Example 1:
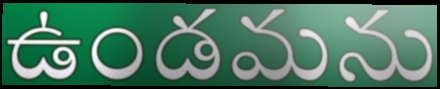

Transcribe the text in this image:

ఉండమను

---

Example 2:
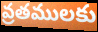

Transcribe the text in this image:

వ్రతములకు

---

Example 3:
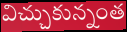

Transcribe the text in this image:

విచ్చుకున్నంత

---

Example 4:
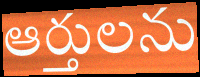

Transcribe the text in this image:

ఆర్తులను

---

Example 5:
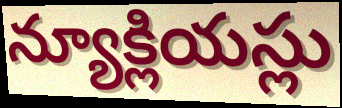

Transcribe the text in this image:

న్యూక్లియస్లు